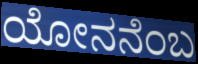
ಯೋನನೆಂಬ